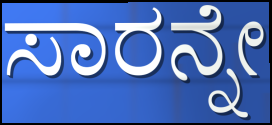
ಸಾರನ್ನೇ